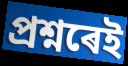
প্ৰশ্নৰেই